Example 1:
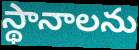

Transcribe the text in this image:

స్థానాలను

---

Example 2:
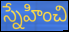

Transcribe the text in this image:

స్నేహించి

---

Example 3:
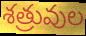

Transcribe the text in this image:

శత్రువుల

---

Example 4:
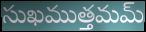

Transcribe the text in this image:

సుఖముత్తమమ్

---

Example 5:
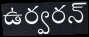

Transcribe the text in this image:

ఉర్వరన్